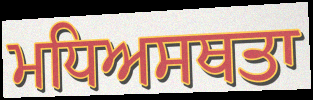
ਮਧਿਅਸਥਤਾ